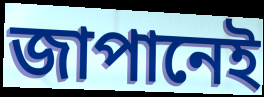
জাপানেই